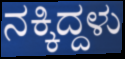
ನಕ್ಕಿದ್ದಳು